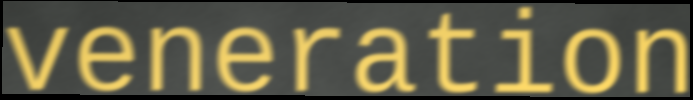
veneration